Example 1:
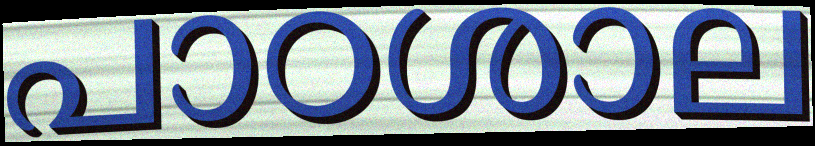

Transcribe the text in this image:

പാഠശാല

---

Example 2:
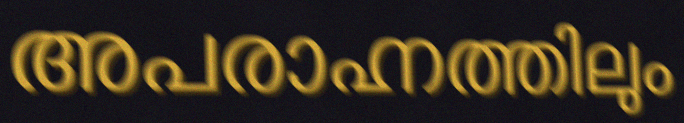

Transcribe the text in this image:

അപരാഹ്നത്തിലും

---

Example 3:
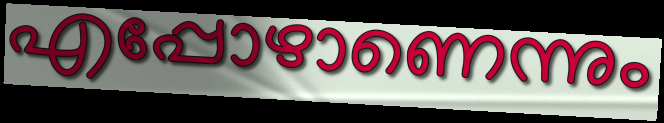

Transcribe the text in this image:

എപ്പോഴാണെന്നും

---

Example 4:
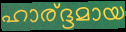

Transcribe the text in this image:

ഹാര്ദ്ദമായ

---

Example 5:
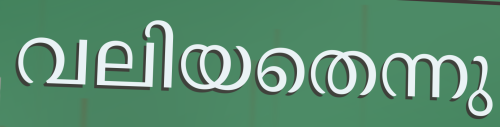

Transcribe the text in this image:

വലിയതെന്നു